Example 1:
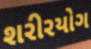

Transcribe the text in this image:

શરીરયોગ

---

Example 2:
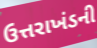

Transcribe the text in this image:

ઉત્તરાખંડની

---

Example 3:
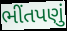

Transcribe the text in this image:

ભીંતપણું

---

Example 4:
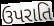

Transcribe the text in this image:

ઉપરાતિ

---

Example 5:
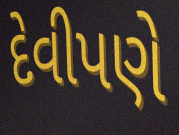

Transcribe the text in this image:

દેવીપણે